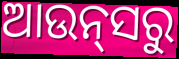
ଆଉନ୍‍ସରୁ